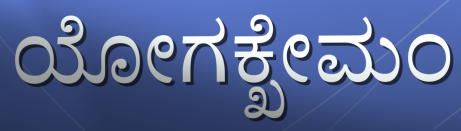
ಯೋಗಕ್ಖೇಮಂ